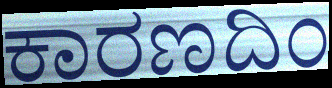
ಕಾರಣದಿಂ